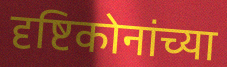
दृष्टिकोनांच्या